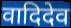
वादिदेव